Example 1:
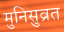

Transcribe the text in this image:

मुनिसुव्रत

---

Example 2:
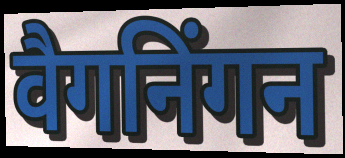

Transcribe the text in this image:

वैगनिंगन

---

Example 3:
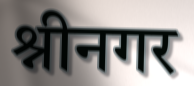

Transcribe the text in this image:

श्नीनगर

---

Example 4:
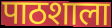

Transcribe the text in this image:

पाठशाला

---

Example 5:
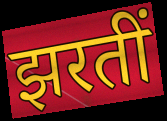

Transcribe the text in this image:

झरतीं